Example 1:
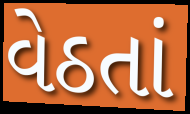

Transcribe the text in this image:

વેઠતાં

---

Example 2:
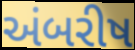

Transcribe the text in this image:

અંબરીષ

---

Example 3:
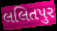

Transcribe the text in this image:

લલિતપુર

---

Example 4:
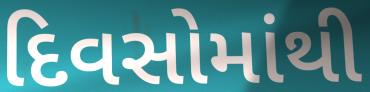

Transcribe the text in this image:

દિવસોમાંથી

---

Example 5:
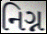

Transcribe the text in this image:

નિગ્ન